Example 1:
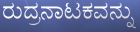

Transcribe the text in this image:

ರುದ್ರನಾಟಕವನ್ನು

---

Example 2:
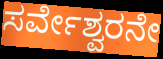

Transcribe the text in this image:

ಸರ್ವೇಶ್ವರನೇ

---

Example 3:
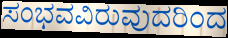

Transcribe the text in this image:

ಸಂಭವವಿರುವುದರಿಂದ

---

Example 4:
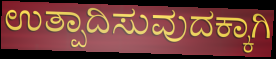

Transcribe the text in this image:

ಉತ್ಪಾದಿಸುವುದಕ್ಕಾಗಿ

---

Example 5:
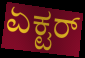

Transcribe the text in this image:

ಏಕ್ಟರ್